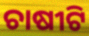
ଚାଷୀଟି